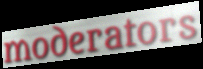
moderators